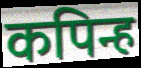
कपिन्ह